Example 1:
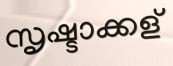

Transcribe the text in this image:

സൃഷ്ടാക്കള്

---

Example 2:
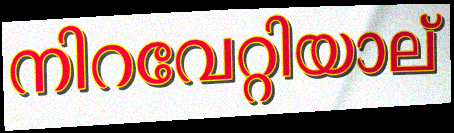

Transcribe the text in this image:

നിറവേറ്റിയാല്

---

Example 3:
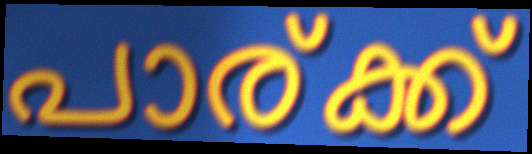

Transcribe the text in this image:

പാര്ക്ക്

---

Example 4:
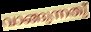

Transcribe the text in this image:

വാങ്ങുന്നതു്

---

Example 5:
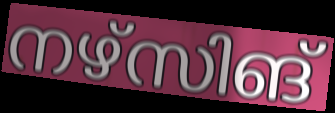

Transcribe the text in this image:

നഴ്സിങ്